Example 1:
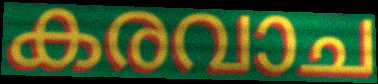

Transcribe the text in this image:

കരവാച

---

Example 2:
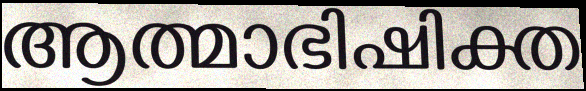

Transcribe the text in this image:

ആത്മാഭിഷിക്ത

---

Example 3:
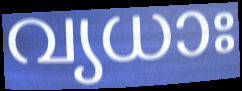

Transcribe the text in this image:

വ്യധാഃ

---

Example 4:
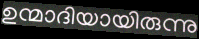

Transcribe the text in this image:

ഉന്മാദിയായിരുന്നു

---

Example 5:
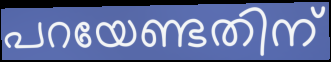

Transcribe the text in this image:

പറയേണ്ടതിന്